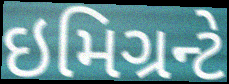
ઇમિગ્રન્ટે